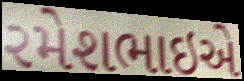
રમેશભાઇએ